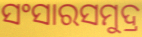
ସଂସାରସମୁଦ୍ର